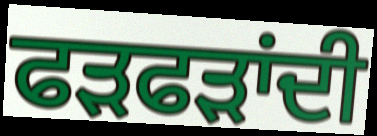
ਫੜਫੜਾਂਦੀ